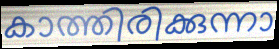
കാത്തിരിക്കുന്നാ